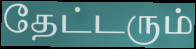
தேட்டரும்